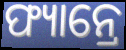
ଫ୍ୟାନ୍ରେ